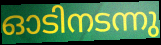
ഓടിനടന്നു